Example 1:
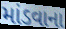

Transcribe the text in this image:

માંડવાના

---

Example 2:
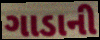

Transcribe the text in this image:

ગાડાની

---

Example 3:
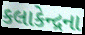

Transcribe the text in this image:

કલાકેન્દ્રના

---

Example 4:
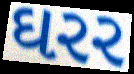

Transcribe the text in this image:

ઘરર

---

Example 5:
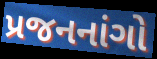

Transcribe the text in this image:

પ્રજનનાંગો